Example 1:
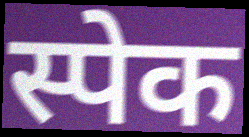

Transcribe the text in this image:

स्पेक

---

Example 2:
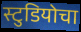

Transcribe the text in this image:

स्टुडियोचा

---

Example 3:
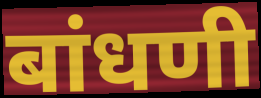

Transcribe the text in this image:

बांधणी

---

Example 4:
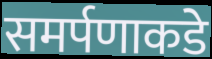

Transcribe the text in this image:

समर्पणाकडे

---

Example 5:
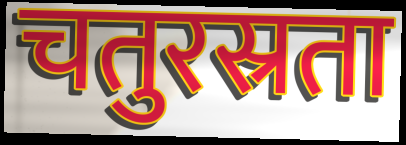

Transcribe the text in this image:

चतुरस्रता